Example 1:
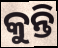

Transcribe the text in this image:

କୁନ୍ତି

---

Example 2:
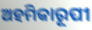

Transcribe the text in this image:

ଅହମିକାରୂପୀ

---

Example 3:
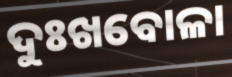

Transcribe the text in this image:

ଦୁଃଖବୋଳା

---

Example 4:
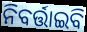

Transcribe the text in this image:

ନିବର୍ତ୍ତାଇବି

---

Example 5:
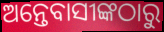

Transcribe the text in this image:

ଅନ୍ତେବାସୀଙ୍କଠାରୁ